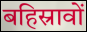
बहिस्रावों